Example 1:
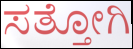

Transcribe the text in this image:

ಸತ್ತೋಗಿ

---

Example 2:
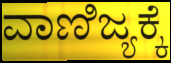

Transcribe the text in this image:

ವಾಣಿಜ್ಯಕ್ಕೆ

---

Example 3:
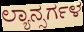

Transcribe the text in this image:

ಲ್ಯಾನ್ಸರ್ಗಳ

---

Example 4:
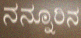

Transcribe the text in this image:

ನನ್ನೂರಿನ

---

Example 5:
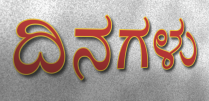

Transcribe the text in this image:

ದಿನಗಳು